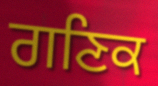
ਗਣਿਕ